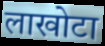
लाखोटा